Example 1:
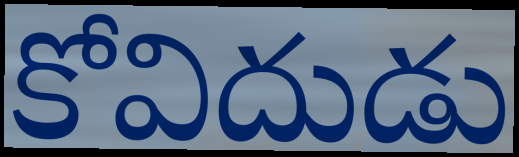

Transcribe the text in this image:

కోవిదుడు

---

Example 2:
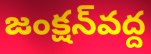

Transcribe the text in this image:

జంక్షన్‌వద్ద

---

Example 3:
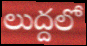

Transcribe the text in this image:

లుద్దలో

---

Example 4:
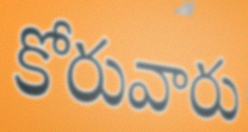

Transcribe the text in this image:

కోరువారు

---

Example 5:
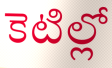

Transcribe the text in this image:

కెటిల్లో